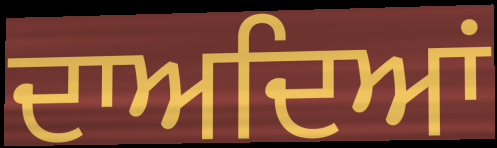
ਦਾਅਦਿਆਂ